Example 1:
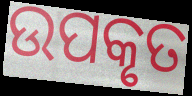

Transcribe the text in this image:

ଉପକୃତ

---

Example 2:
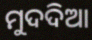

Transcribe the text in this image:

ମୁଦଦିଆ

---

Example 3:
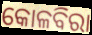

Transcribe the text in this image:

କୋଳବିରା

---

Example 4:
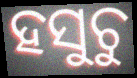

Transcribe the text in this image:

ହସୁଚୁ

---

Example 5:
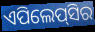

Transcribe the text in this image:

ଏପିଲେପ୍‌ସିର